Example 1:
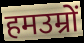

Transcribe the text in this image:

हमउम्रों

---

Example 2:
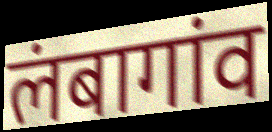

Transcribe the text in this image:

लंबागांव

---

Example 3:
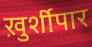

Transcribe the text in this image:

ख़ुर्शीपार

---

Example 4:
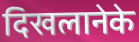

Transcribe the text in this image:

दिखलानेके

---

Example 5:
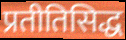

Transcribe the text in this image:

प्रतीतिसिद्ध